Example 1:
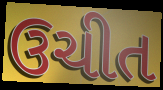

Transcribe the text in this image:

ઉચીત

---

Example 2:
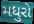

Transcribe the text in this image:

મધુરો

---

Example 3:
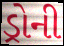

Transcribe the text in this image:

ડ્રોની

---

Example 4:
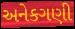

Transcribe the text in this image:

અનેકગણી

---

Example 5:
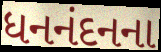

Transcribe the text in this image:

ધનનંદનના